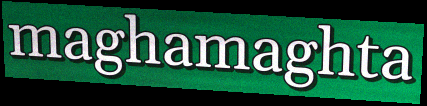
maghamaghta